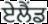
ਏਲੈਂਡ